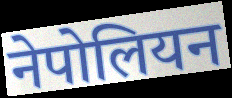
नेपोलियन